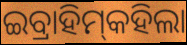
ଇବ୍ରାହିମ୍‌କହିଲା